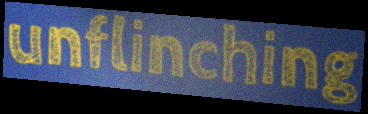
unflinching